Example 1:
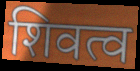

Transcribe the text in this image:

शिवत्व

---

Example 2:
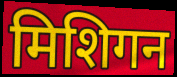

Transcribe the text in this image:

मिशिगन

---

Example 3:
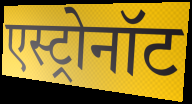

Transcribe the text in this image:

एस्‍ट्रोनॉट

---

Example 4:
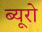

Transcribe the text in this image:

ब्यूरो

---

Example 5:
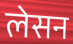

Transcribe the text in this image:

लेसन